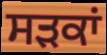
ਸਡ਼ਕਾਂ